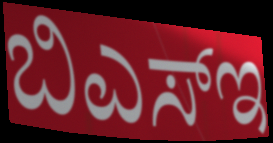
ಬಿಎಸ್ಇ